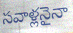
సవాళ్లనైనా